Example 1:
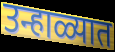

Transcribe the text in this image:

उन्हाळ्यात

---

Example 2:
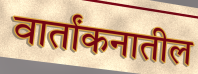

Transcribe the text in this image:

वार्तांकनातील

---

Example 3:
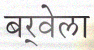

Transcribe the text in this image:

बर्वेला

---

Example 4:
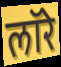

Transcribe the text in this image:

लॉरे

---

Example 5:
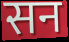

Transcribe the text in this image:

सन